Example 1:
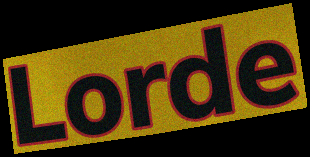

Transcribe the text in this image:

Lorde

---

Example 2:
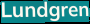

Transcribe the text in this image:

Lundgren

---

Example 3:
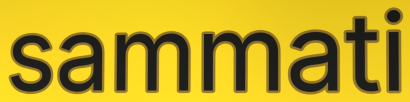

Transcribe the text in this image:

sammati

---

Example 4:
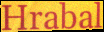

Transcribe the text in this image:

Hrabal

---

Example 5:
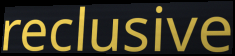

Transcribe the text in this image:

reclusive